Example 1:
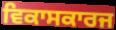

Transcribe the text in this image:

ਵਿਕਾਸਕਾਰਜ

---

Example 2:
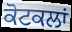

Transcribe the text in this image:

ਕੋਟਕਲਾਂ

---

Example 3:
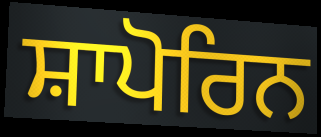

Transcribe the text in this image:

ਸ਼ਾਪੋਰਿਨ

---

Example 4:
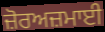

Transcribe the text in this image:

ਜ਼ੋਰਅਜ਼ਮਾਈ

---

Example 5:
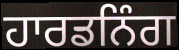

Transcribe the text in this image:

ਹਾਰਡਨਿੰਗ